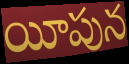
యీపున